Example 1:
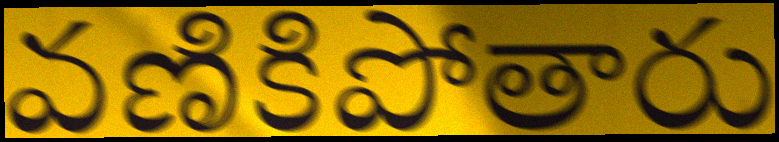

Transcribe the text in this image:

వణికిపోతారు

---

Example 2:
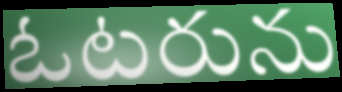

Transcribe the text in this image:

ఓటరును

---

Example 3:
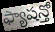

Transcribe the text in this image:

ఫ్యాషన్తో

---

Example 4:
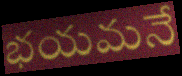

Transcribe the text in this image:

భయమనే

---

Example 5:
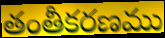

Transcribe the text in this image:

తంతీకరణము